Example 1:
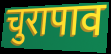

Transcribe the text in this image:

चुरापाव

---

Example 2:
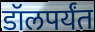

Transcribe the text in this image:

डॉलपर्यंत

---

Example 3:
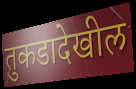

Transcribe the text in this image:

तुकडादेखील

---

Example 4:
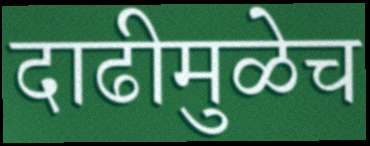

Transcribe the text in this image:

दाढीमुळेच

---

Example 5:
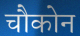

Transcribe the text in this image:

चौकोन